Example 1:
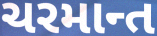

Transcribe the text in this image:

ચરમાન્ત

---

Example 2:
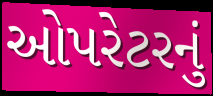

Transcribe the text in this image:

ઓપરેટરનું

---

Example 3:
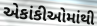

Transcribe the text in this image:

એકાંકીઓમાંથી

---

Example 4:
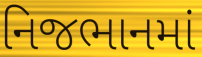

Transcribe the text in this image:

નિજભાનમાં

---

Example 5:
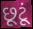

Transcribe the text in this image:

છૂટૂં